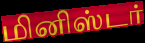
மினிஸ்டர்